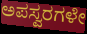
ಅಪಸ್ವರಗಳೇ